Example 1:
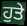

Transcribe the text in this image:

ਹੁਤੇ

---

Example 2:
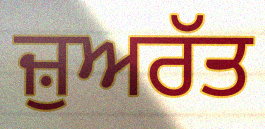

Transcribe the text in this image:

ਜ਼ੁਅਰੱਤ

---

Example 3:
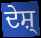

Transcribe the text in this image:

ਦੇਸ਼੍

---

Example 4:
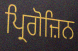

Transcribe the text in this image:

ਪ੍ਰਿਗੋਜ਼ਿਨ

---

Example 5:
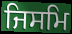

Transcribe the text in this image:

ਜਿਸਮਿ